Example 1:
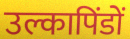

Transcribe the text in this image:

उल्कापिंडों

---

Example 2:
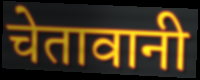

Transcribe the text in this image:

चेतावानी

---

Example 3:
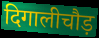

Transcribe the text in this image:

दिगालीचौड़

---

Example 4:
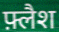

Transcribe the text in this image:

फ़्लैश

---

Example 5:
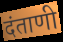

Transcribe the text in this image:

दंताणी